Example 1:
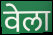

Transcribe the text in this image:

वेला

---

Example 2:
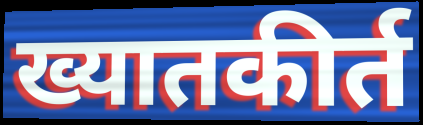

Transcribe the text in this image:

ख्यातकीर्त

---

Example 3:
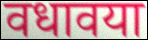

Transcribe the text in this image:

वधावया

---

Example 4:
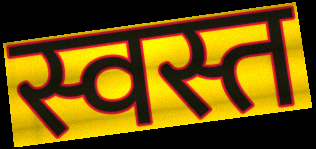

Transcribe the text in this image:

स्वस्त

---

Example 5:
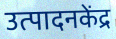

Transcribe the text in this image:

उत्पादनकेंद्र